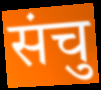
संचु